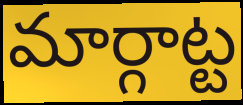
మార్గాట్ట